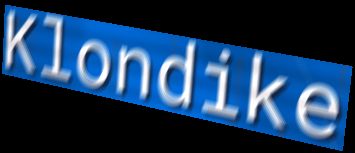
Klondike